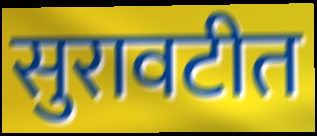
सुरावटीत